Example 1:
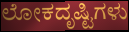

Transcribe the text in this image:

ಲೋಕದೃಷ್ಟಿಗಳು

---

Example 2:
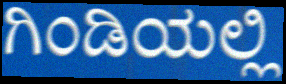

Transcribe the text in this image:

ಗಿಂಡಿಯಲ್ಲಿ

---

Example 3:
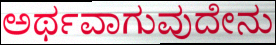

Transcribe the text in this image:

ಅರ್ಥವಾಗುವುದೇನು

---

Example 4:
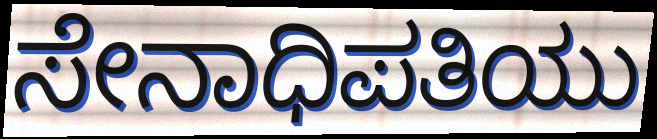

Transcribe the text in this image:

ಸೇನಾಧಿಪತಿಯು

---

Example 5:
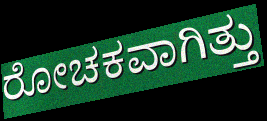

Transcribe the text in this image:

ರೋಚಕವಾಗಿತ್ತು